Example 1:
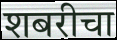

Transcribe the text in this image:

शबरीचा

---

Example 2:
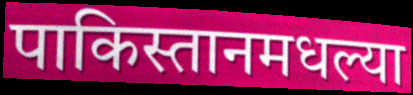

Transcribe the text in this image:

पाकिस्तानमधल्या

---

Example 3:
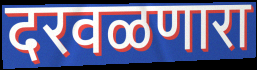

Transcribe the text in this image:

दरवळणारा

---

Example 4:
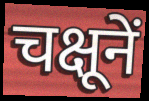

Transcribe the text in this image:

चक्षूनें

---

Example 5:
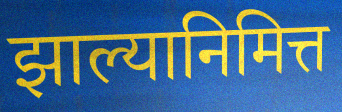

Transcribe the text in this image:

झाल्यानिमित्त